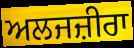
ਅਲਜਜ਼ੀਰਾ